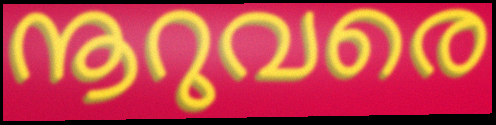
നൂറുവരെ